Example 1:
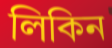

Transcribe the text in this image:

লিকিন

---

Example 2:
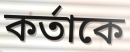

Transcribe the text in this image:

কর্তাকে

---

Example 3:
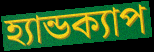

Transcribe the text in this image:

হ্যান্ডক্যাপ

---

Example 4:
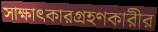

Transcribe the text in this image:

সাক্ষাৎকারগ্রহণকারীর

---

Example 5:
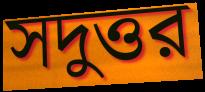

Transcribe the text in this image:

সদুত্তর